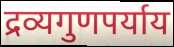
द्रव्यगुणपर्याय